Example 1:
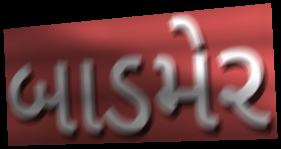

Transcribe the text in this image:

બાડમેર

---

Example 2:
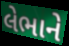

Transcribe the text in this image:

લેભાને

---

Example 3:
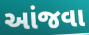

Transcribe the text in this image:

આંજવા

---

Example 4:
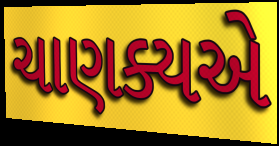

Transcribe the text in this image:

ચાણક્યએ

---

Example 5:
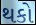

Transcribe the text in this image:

થકો